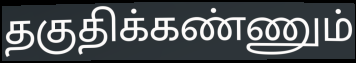
தகுதிக்கண்ணும்